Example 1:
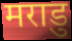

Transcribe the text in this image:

मराडु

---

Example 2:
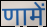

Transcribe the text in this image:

णामें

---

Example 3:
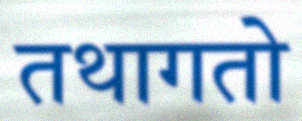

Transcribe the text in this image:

तथागतो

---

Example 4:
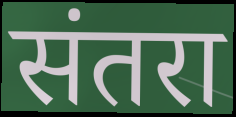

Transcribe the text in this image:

संतरा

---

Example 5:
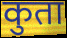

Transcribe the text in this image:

कुता